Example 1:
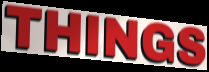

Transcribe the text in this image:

THINGS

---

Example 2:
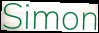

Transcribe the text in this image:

Simon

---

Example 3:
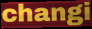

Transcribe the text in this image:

changi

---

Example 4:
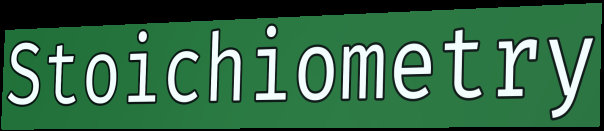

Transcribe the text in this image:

Stoichiometry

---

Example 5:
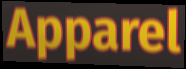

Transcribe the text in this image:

Apparel